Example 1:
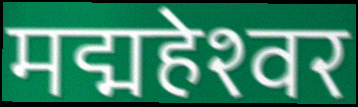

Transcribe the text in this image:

मद्महेश्वर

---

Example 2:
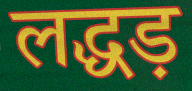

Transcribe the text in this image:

लद्धड़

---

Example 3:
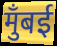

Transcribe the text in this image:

मुँबई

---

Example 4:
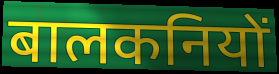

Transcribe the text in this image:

बालकनियों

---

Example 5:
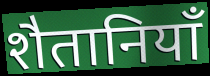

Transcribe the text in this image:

शैतानियाँ